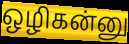
ஒழிகன்னு